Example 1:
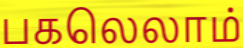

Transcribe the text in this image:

பகலெலாம்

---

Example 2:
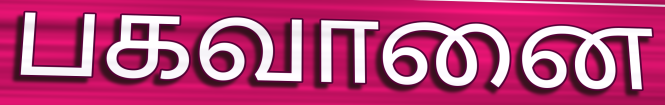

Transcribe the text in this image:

பகவானை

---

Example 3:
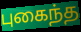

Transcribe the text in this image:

புகைந்த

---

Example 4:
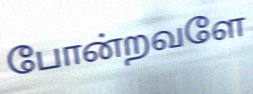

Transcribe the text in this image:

போன்றவளே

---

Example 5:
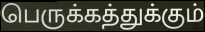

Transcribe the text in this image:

பெருக்கத்துக்கும்